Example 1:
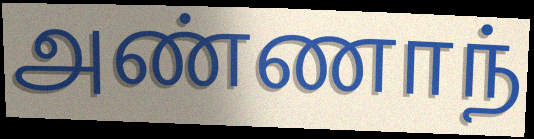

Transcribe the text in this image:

அண்ணாந்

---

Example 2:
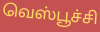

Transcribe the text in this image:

வெஸ்பூச்சி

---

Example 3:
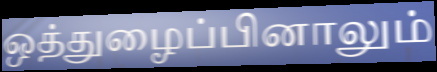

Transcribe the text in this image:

ஒத்துழைப்பினாலும்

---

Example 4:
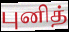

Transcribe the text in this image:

புனித்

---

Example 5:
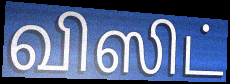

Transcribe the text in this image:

விஸிட்